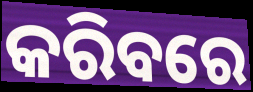
କରିବରେ